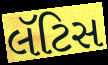
લૅટિસ